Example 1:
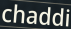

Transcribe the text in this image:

chaddi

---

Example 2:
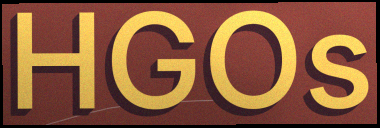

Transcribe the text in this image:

HGOs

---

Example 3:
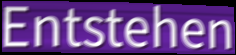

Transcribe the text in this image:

Entstehen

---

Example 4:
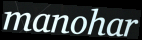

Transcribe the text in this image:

manohar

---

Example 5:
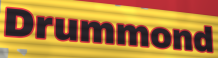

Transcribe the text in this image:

Drummond